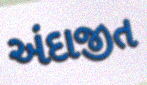
અંદાજીત